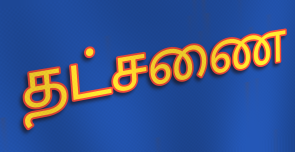
தட்சணை